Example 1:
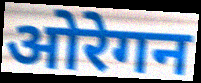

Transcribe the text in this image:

ओरेगन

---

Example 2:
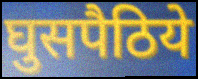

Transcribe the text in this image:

घुसपैठिये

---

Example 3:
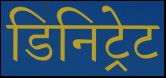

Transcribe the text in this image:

डिनिट्रेट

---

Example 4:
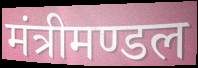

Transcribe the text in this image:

मंत्रीमण्डल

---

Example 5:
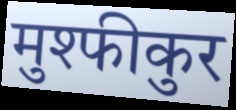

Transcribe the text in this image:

मुश्फीकुर